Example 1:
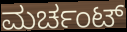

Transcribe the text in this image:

ಮರ್ಚಂಟ್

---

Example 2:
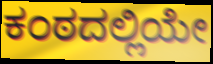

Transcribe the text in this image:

ಕಂಠದಲ್ಲಿಯೇ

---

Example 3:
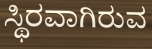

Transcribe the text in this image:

ಸ್ಥಿರವಾಗಿರುವ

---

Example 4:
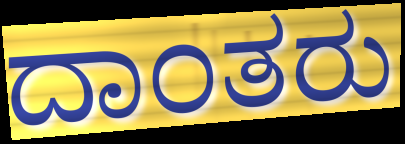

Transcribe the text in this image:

ದಾಂತರು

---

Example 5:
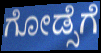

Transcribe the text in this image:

ಗೋಡ್ಸೆಗೆ